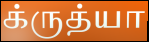
க்ருத்யா